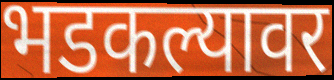
भडकल्यावर